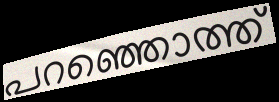
പറഞ്ഞൊത്ത്